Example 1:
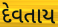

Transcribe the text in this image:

દેવતાય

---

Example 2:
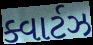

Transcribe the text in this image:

ક્વાર્ટઝ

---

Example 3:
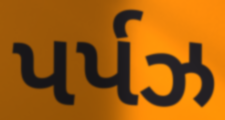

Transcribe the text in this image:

પર્પઝ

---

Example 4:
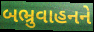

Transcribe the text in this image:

બભ્રુવાહનને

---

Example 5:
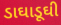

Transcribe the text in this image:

ડાઘાડૂઘી